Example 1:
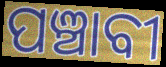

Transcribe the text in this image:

ପଞ୍ଚାବୀ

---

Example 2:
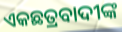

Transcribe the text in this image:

ଏକଛତ୍ରବାଦୀଙ୍କ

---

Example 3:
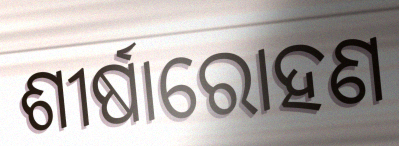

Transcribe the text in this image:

ଶୀର୍ଷାରୋହଣ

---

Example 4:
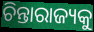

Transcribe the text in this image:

ଚିନ୍ତାରାଜ୍ୟକୁ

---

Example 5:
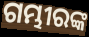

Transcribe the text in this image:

ଗମ୍ଭୀରଙ୍କ